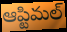
ఆప్టిమల్